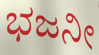
ಭಜನೀ